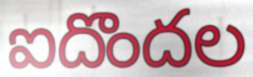
ఐదొందల